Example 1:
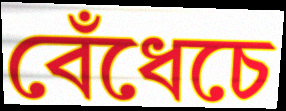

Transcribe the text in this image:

বেঁধেচে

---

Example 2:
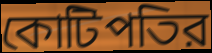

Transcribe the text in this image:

কোটিপতির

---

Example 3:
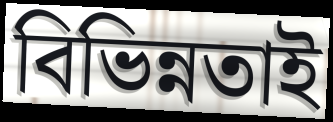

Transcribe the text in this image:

বিভিন্নতাই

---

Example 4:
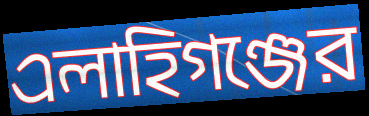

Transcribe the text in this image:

এলাহিগঞ্জের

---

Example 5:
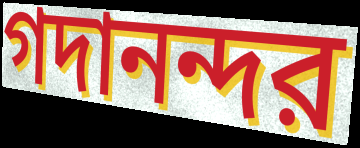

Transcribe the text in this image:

গদানন্দর